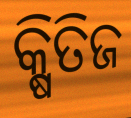
କ୍ଷିତିଜ